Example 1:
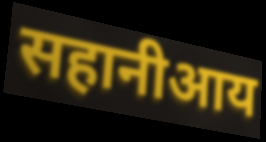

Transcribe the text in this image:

सहानीआय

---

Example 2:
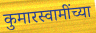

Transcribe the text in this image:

कुमारस्वामींच्या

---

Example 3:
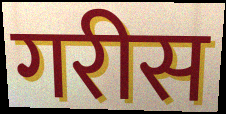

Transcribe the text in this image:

गरीस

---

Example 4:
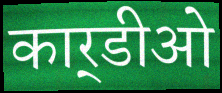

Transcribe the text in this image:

कार्डीओ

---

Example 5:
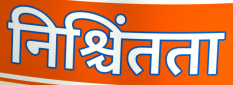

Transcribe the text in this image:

निश्चिंतता